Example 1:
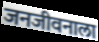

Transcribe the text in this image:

जनजीवनाला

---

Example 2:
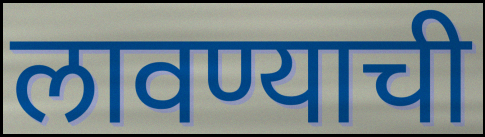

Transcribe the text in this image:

लावण्याची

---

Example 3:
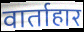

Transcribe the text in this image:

वार्ताहार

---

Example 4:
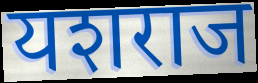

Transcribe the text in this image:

यशराज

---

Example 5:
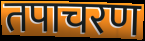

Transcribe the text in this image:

तपाचरण